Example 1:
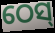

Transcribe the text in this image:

ଠେସ୍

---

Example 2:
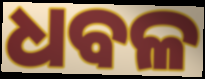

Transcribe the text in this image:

ଧବଳ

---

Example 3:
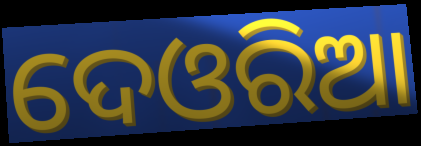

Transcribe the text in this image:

ଦେଓରିଆ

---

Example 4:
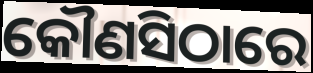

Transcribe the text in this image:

କୌଣସିଠାରେ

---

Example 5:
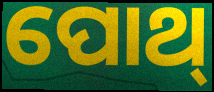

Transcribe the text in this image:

ପୋଥ୍